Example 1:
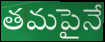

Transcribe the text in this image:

తమపైనే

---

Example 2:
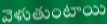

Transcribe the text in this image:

వెళుతుంటాయి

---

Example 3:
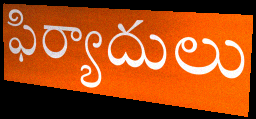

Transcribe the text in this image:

ఫిర్యాదులు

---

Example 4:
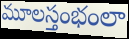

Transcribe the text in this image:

మూలస్తంభంలా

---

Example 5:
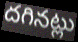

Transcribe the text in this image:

దగినట్లు